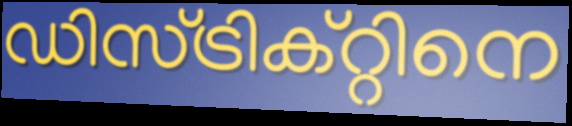
ഡിസ്ട്രിക്റ്റിനെ